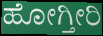
ಹೋಗ್ತೀರಿ